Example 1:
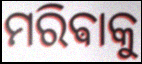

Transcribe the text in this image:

ମରିଵାକୁ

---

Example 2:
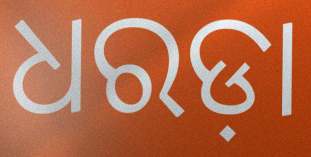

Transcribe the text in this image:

ଧରଡ଼ା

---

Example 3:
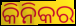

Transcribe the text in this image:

କିନିକର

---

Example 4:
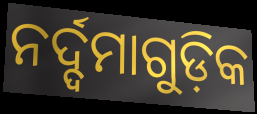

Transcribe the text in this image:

ନର୍ଦ୍ଦମାଗୁଡ଼ିକ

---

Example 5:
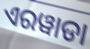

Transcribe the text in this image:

ଏରୱାଡା